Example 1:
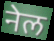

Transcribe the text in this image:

नेल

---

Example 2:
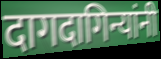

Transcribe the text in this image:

दागदागिन्यांनी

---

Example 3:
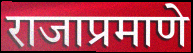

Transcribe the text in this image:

राजाप्रमाणे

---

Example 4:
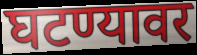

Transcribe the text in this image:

घटण्यावर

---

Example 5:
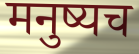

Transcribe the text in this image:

मनुष्यच